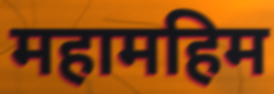
महामहिम